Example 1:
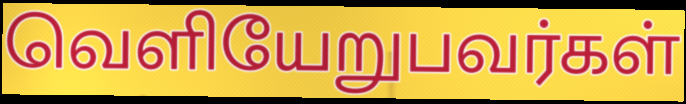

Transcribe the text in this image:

வெளியேறுபவர்கள்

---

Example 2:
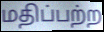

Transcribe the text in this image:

மதிப்பற்ற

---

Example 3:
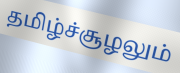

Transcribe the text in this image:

தமிழ்ச்சூழலும்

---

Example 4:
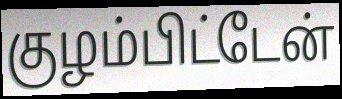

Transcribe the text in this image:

குழம்பிட்டேன்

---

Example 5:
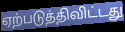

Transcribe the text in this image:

ஏற்படுத்திவிட்டது